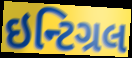
ઇન્ટિગ્રલ